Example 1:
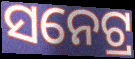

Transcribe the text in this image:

ସନେଟ୍ର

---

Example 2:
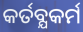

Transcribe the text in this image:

କର୍ତବ୍ଯକର୍ମ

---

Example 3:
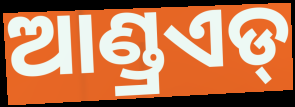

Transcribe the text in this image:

ଆଣ୍ଡ୍ରଏଡ୍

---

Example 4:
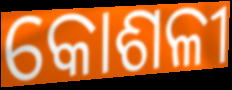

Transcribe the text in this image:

କୋଶଳୀ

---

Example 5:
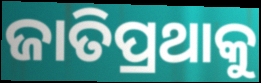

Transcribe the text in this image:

ଜାତିପ୍ରଥାକୁ